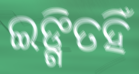
ଇଙ୍ଗିତହିଁ